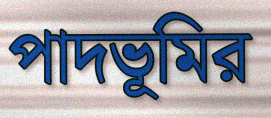
পাদভূমির